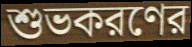
শুভকরণের